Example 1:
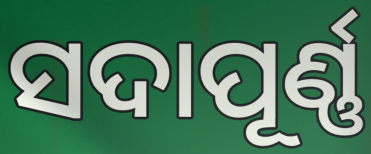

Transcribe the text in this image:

ସଦାପୂର୍ଣ୍ଣ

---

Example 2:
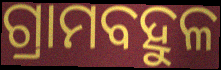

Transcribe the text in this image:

ଗ୍ରାମବହୁଳ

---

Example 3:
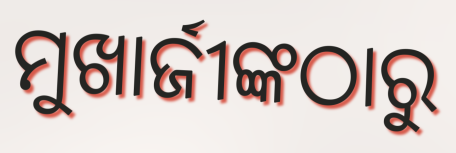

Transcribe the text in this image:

ମୁଖାର୍ଜୀଙ୍କଠାରୁ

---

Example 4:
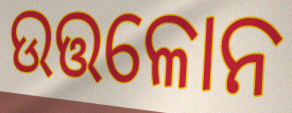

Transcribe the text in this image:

ଉତ୍ତଳୋନ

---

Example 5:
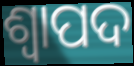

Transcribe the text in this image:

ଶ୍ୱାପଦ